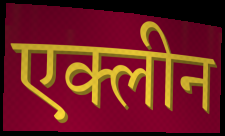
एक्लीन